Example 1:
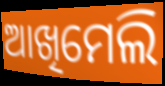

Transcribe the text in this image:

ଆଖିମେଲି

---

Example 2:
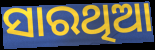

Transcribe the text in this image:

ସାରଥିଆ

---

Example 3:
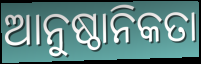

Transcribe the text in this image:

ଆନୁଷ୍ଠାନିକତା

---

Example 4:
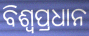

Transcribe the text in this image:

ବିଶ୍ୱପ୍ରଧାନ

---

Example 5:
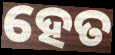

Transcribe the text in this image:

ହେତ